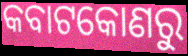
କବାଟକୋଣରୁ